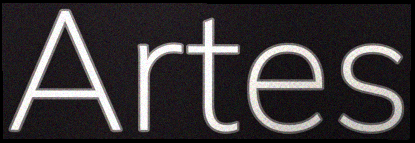
Artes